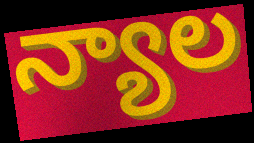
న్యాల